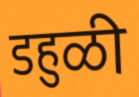
डहुळी